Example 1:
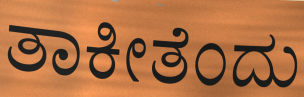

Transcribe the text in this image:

ತಾಕೀತೆಂದು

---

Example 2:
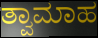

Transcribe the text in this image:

ತ್ವಾಮಾಹ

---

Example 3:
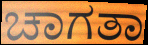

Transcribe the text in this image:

ಚಾಗತಾ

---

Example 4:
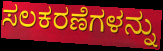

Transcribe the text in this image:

ಸಲಕರಣೆಗಳನ್ನು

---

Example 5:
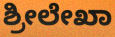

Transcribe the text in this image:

ಶ್ರೀಲೇಖಾ